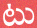
టు